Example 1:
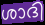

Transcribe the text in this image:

ശാദി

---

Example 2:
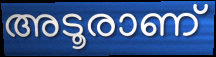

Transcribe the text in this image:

അടൂരാണ്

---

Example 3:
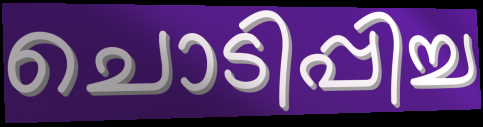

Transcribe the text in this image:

ചൊടിപ്പിച്ച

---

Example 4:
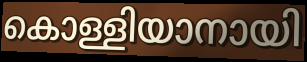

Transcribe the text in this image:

കൊള്ളിയാനായി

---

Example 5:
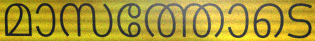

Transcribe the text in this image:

മാസത്തോടെ